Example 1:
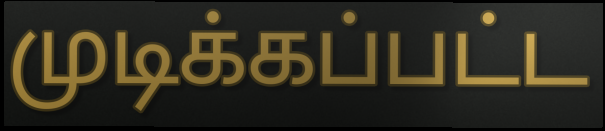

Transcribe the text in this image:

முடிக்கப்பட்ட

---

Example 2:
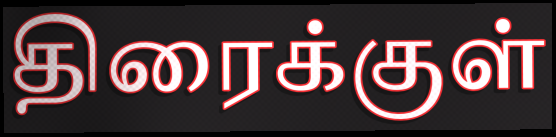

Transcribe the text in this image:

திரைக்குள்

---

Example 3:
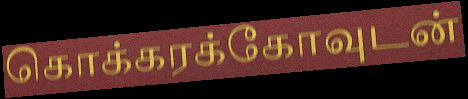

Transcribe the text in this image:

கொக்கரக்கோவுடன்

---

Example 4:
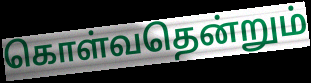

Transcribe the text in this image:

கொள்வதென்றும்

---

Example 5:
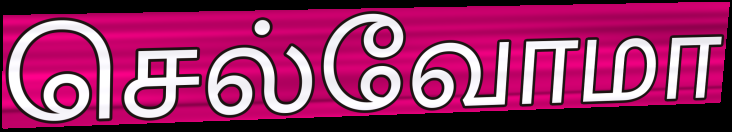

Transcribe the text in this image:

செல்வோமா